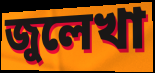
জুলেখা